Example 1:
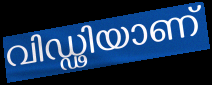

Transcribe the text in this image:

വിഡ്ഢിയാണ്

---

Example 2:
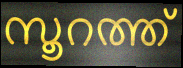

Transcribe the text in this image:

സൂറത്ത്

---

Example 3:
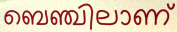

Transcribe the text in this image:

ബെഞ്ചിലാണ്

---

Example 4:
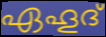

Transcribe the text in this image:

ഏഹൂദ്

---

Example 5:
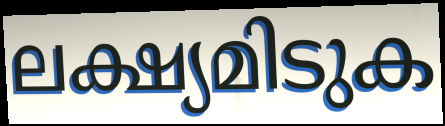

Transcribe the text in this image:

ലക്ഷ്യമിടുക